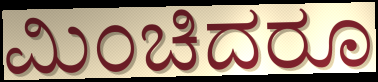
ಮಿಂಚಿದರೂ